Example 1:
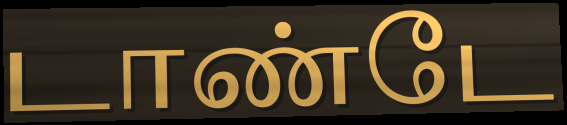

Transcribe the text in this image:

டாண்டே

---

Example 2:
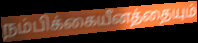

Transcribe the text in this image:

நம்பிக்கையீனத்தையும்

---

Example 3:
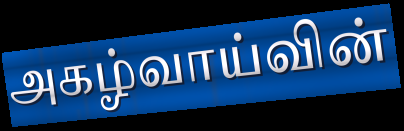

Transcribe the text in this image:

அகழ்வாய்வின்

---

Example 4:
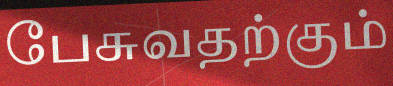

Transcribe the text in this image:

பேசுவதற்கும்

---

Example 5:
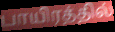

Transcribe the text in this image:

பாயிரத்தில்